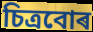
চিত্ৰবোৰ